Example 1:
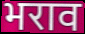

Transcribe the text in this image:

भराव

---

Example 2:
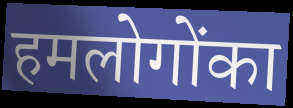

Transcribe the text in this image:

हमलोगोंका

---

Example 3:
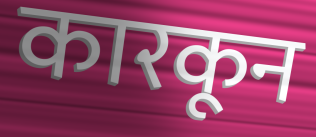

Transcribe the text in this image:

कारकून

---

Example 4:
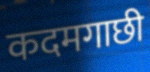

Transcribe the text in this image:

कदमगाछी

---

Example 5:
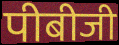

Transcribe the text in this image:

पीबीजी